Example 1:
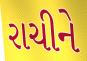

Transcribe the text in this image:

રાચીને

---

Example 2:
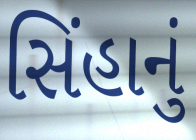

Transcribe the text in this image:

સિંહાનું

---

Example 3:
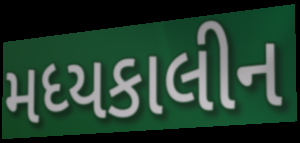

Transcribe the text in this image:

મધ્યકાલીન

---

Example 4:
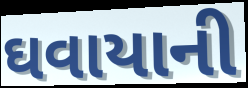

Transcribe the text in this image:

ઘવાયાની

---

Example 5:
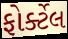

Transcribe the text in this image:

ફોર્ક્ટેલ